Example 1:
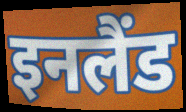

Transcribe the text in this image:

इनलैंड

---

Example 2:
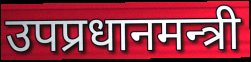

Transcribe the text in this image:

उपप्रधानमन्त्री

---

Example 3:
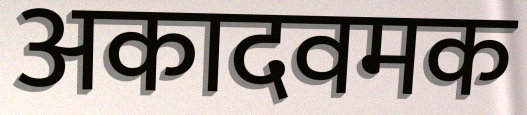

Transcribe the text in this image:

अकादवमक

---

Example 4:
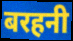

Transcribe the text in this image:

बरहनी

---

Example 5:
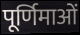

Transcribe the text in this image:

पूर्णिमाओं